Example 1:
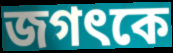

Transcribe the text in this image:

জগৎকে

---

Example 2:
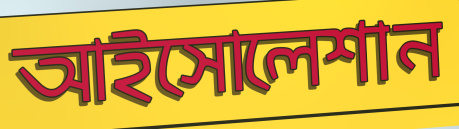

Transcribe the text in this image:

আইসোলেশান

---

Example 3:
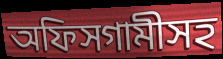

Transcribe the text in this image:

অফিসগামীসহ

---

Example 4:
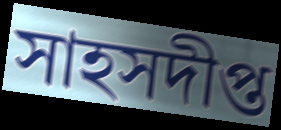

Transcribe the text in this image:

সাহসদীপ্ত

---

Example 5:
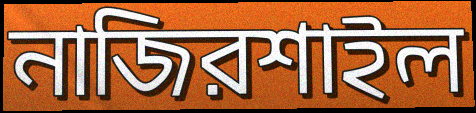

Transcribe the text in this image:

নাজিরশাইল